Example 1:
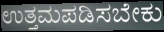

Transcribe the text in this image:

ಉತ್ತಮಪಡಿಸಬೇಕು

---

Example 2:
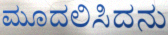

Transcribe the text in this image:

ಮೂದಲಿಸಿದನು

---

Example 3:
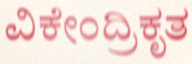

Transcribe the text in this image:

ವಿಕೇಂದ್ರಿಕೃತ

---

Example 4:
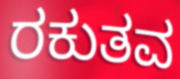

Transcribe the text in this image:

ರಕುತವ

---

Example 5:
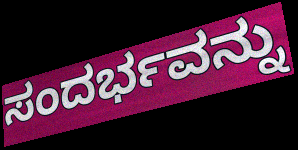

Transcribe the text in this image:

ಸಂದರ್ಭವನ್ನು